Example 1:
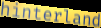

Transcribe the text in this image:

hinterland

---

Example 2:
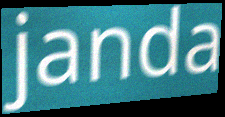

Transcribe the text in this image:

janda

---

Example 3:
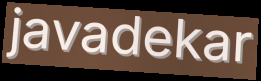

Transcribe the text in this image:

javadekar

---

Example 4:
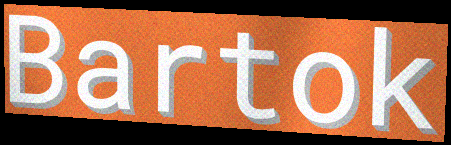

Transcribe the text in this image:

Bartok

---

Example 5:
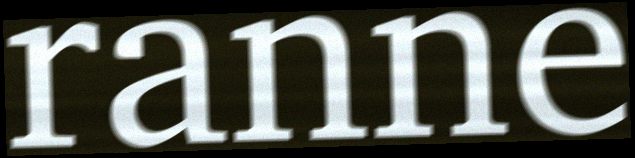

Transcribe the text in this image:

ranne